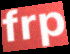
frp